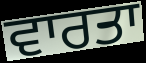
ਵਾਰਤਾ